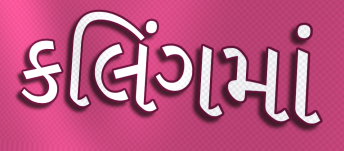
કલિંગમાં